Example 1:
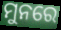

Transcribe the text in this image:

ମୁନରେ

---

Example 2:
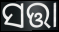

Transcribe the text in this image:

ସତ୍ତା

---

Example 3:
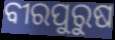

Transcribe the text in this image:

ବୀରପୁରୁଷ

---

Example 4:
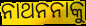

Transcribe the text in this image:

ନାଥନନାକୁ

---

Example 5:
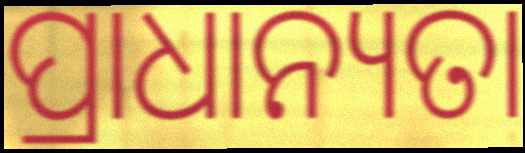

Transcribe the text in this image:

ପ୍ରାଧାନ୍ୟତା